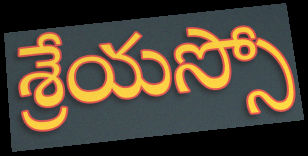
శ్రేయస్సో